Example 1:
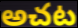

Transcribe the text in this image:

అచట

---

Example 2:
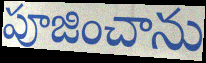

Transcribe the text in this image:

పూజించాను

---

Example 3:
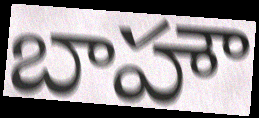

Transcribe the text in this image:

బాహౌ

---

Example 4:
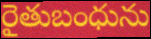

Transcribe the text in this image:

రైతుబంధును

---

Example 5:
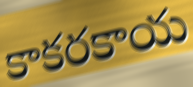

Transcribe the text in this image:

కాకరకాయ